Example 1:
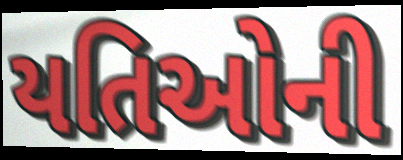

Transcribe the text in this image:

યતિઓની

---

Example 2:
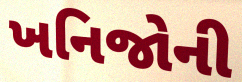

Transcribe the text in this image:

ખનિજોની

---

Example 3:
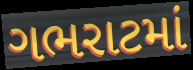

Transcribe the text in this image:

ગભરાટમાં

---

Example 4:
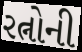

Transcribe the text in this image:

રત્નોની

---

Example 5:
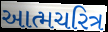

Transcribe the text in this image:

આત્મચરિત્ર